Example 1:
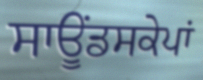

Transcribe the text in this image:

ਸਾਊਂਡਸਕੇਪਾਂ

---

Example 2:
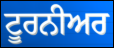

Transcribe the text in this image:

ਟੂਰਨੀਅਰ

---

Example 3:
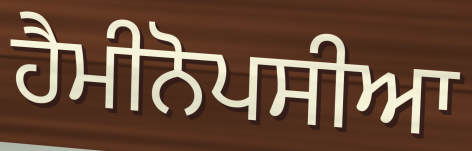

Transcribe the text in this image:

ਹੈਮੀਨੋਪਸੀਆ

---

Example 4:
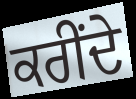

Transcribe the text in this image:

ਕਰੀਂਦੇ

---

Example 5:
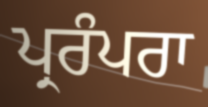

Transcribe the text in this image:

ਪ੍ਰਰੰਪਰਾ